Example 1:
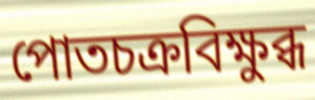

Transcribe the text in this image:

পোতচক্রবিক্ষুব্ধ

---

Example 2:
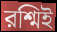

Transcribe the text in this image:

রশ্মিই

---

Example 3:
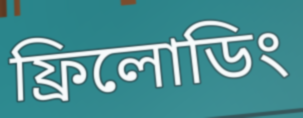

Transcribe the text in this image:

ফ্রিলোডিং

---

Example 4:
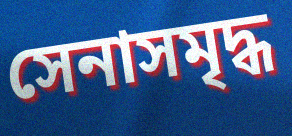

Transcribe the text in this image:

সেনাসমৃদ্ধ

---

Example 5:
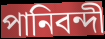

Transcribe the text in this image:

পানিবন্দী